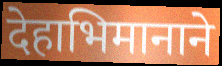
देहाभिमानाने